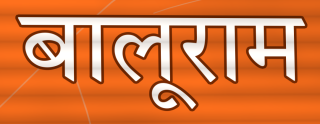
बालूराम